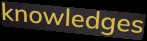
knowledges